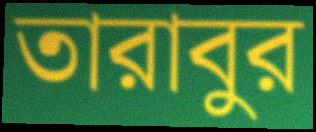
তারাবুর